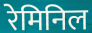
रेमिनिल